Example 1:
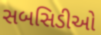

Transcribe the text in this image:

સબસિડીઓ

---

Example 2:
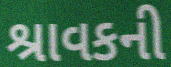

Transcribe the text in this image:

શ્રાવકની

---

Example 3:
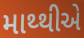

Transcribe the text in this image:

માથ્થીએ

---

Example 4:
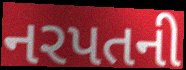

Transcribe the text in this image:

નરપતની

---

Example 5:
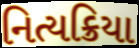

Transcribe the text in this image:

નિત્યક્રિયા